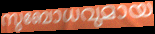
സുബോധവുമായ